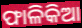
ଫାଳିକିଆ